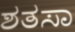
ಶತಸಾ